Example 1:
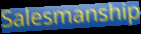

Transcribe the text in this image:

Salesmanship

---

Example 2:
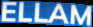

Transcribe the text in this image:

ELLAM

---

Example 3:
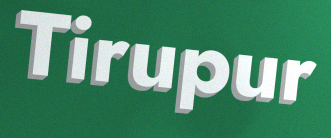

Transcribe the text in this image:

Tirupur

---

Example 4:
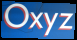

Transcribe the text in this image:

Oxyz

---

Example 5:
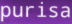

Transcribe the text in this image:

purisa